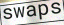
swaps